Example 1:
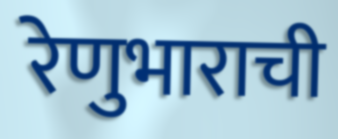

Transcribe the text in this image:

रेणुभाराची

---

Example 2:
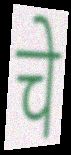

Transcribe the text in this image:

चे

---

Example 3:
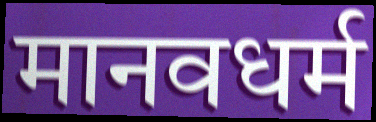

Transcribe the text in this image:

मानवधर्म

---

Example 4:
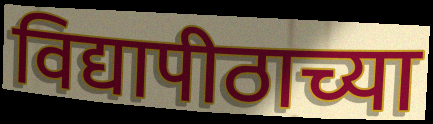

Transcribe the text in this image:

विद्यापीठाच्या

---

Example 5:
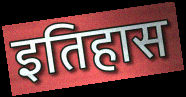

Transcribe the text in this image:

इतिहास